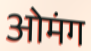
ओमंग